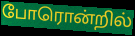
போரொன்றில்